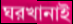
ঘরখানাই